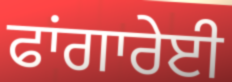
ਫਾਂਗਾਰੇਈ